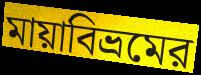
মায়াবিভ্রমের